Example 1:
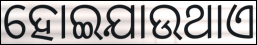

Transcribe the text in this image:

ହୋଇଯାଉଥାଏ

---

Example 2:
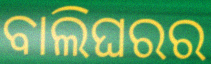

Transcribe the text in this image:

ବାଲିଘରର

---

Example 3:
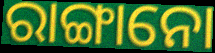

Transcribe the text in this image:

ରାଙ୍ଗାନୋ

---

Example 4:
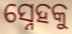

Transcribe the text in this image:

ସ୍ନେହକୁ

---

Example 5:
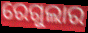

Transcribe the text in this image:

ରେଗୁଲାର